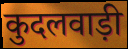
कुदलवाड़ी